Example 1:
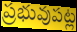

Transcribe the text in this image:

ప్రభువుపట్ల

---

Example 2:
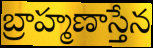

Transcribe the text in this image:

బ్రాహ్మణాస్తేన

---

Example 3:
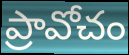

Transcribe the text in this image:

ప్రావోచం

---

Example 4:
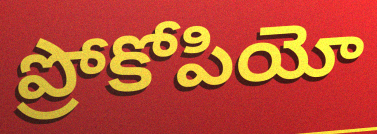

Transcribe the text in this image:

ప్రోకోపియో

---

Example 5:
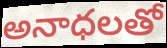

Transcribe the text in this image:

అనాధలతో